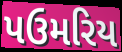
પઉમરિય